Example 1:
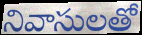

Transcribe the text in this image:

నివాసులతో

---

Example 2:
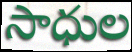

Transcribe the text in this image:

సాధుల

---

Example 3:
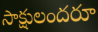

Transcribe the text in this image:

సాక్షులందరూ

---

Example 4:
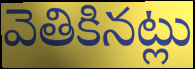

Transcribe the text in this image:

వెతికినట్లు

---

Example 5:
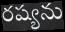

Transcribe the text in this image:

రష్యను